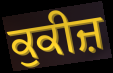
ਕੁਕੀਜ਼